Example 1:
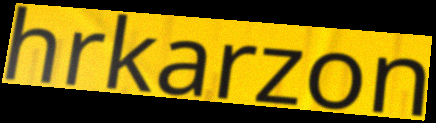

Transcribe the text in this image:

hrkarzon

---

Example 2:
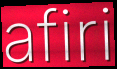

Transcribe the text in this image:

afiri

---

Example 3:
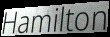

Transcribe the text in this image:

Hamilton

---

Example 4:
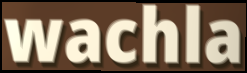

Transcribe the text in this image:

wachla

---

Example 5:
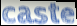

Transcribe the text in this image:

caste